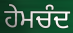
ਹੇਮਚੰਦ